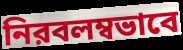
নিরবলম্বভাবে